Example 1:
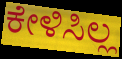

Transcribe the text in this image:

ಕೇಳಿಸಿಲ್ಲ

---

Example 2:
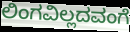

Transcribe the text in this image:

ಲಿಂಗವಿಲ್ಲದವಂಗೆ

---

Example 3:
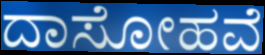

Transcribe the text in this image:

ದಾಸೋಹವೆ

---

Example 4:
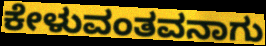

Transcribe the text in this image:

ಕೇಳುವಂತವನಾಗು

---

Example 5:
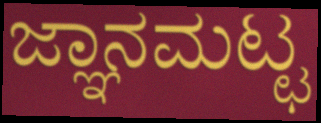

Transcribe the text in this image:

ಜ್ಞಾನಮಟ್ಟ